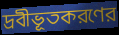
দ্রবীভূতকরণের